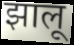
झालू